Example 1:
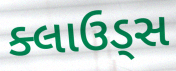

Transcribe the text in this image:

ક્લાઉડ્સ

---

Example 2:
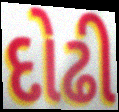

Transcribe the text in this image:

દોઢી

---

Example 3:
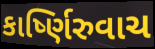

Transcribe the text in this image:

કાર્ષ્ણિરુવાચ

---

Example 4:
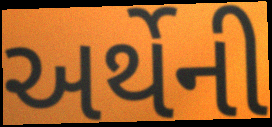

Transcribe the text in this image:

અર્થેની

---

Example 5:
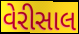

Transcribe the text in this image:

વેરીસાલ